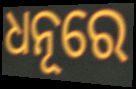
ଧନୂରେ